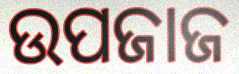
ଉପଜାଜ